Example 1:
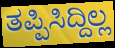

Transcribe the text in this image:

ತಪ್ಪಿಸಿದ್ದಿಲ್ಲ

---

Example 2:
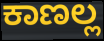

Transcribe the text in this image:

ಕಾಣಲ್ಲ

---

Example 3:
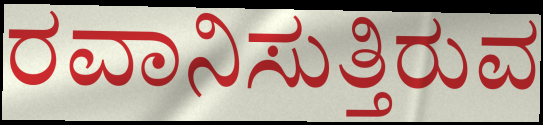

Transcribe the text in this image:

ರವಾನಿಸುತ್ತಿರುವ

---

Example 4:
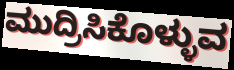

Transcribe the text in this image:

ಮುದ್ರಿಸಿಕೊಳ್ಳುವ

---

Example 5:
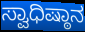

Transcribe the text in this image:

ಸ್ವಾಧಿಷ್ಠಾನ